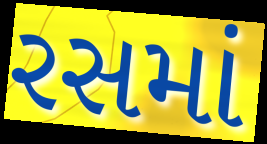
રસમાં